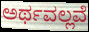
ಅರ್ಥವಲ್ಲವೆ